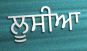
ਲੂਸੀਆ